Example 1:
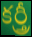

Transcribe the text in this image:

కర్త్రీ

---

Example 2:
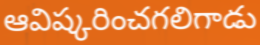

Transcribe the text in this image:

ఆవిష్కరించగలిగాడు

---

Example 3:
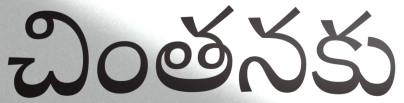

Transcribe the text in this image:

చింతనకు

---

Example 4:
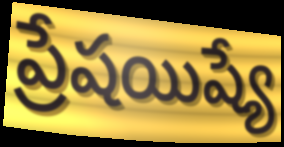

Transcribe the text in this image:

ప్రేషయిష్యే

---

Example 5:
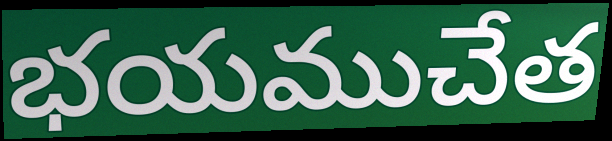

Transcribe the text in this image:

భయముచేత